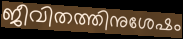
ജീവിതത്തിനുശേഷം